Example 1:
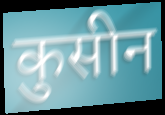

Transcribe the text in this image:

कुसीन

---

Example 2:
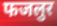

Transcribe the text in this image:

फजलुर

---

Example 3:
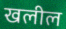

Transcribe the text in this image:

खलील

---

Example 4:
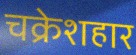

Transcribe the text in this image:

चक्रेशहार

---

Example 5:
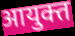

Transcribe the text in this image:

आयुक्‍त